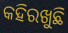
କହିରଖୁଛି